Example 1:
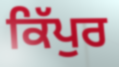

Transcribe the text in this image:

ਕਿੱਪੁਰ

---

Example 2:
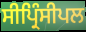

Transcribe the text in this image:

ਸੀਪ੍ਰਿੰਸੀਪਲ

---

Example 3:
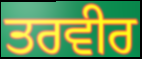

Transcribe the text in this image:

ਤਰਵੀਰ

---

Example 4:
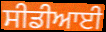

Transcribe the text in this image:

ਸੀਡੀਆਈ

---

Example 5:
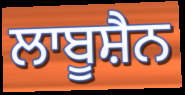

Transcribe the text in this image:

ਲਾਬੂਸ਼ੈਨ